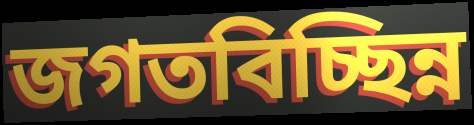
জগতবিচ্ছিন্ন